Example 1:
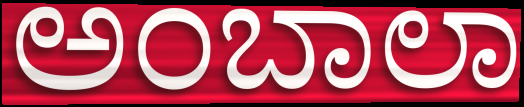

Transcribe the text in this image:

ಅಂಬಾಲಾ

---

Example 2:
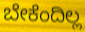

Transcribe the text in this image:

ಬೇಕೆಂದಿಲ್ಲ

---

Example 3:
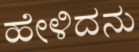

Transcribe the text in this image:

ಹೇಳಿದನು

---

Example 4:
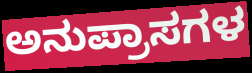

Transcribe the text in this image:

ಅನುಪ್ರಾಸಗಳ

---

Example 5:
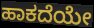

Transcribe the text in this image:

ಹಾಕದೆಯೇ